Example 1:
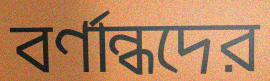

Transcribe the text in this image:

বর্ণান্ধদের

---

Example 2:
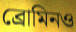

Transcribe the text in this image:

ব্রোমিনও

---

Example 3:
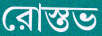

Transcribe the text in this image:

রোস্তভ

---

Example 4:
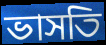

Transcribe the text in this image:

ভাসতি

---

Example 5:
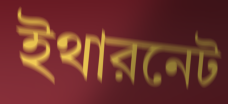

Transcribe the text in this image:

ইথারনেট